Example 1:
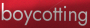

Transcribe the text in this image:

boycotting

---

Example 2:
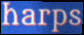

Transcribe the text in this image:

harps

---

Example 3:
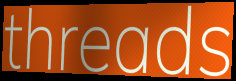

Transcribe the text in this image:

threads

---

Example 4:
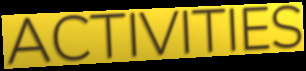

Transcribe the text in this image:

ACTIVITIES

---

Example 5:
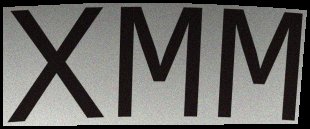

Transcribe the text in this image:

XMM